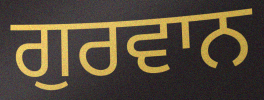
ਗੁਰਵਾਨ